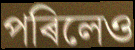
পৰিলেও